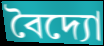
বৈদ্যো